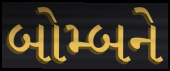
બોમ્બને